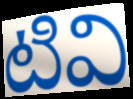
టివి